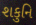
શકુનિ